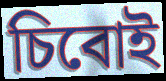
চিবোই